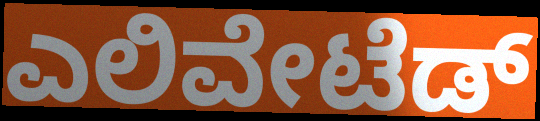
ಎಲಿವೇಟೆಡ್